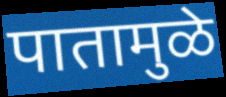
पातामुळे